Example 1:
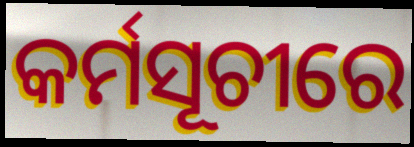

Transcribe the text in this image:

କର୍ମସୂଚୀରେ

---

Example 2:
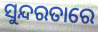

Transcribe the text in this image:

ସୁନ୍ଦରତାରେ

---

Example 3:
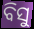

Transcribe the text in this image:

ବିସୁ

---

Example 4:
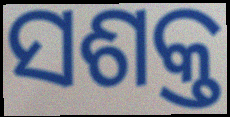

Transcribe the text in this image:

ସଶକ୍ତ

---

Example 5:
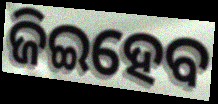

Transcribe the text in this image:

ଜିଇହେବ